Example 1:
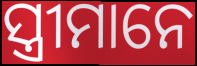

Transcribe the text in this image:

ସ୍ତ୍ରୀମାନେ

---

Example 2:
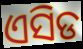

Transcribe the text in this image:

ଏସିଡ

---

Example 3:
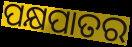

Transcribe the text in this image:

ପକ୍ଷପାତର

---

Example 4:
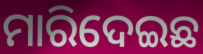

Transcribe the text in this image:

ମାରିଦେଇଛ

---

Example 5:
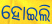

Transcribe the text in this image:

ହୋଇଲି